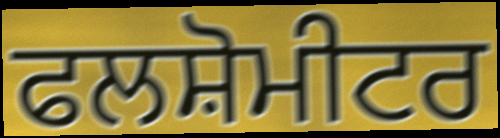
ਫਲਸ਼ੋਮੀਟਰ